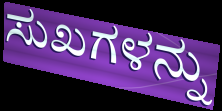
ಸುಖಗಳನ್ನು